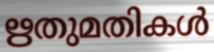
ഋതുമതികൾ